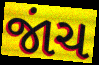
જાંચ